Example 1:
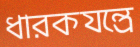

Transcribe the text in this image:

ধারকযন্ত্রে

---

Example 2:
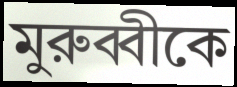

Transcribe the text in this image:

মুরুব্বীকে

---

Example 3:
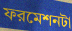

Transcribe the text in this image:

ফরমেশনটা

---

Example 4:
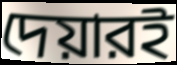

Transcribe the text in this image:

দেয়ারই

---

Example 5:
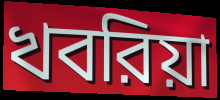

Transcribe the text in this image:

খবরিয়া